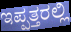
ಇಪ್ಪತ್ತರಲ್ಲಿ